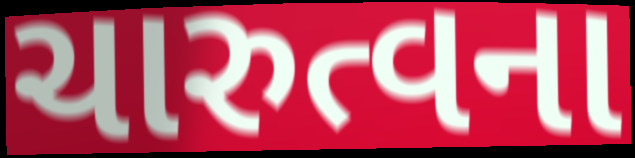
ચારુત્વના